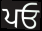
ਪਓ